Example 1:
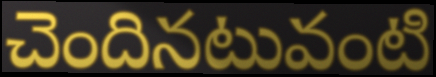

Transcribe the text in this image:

చెందినటువంటి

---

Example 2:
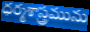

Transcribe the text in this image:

ధర్మశాస్త్రమును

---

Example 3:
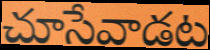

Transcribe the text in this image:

చూసేవాడట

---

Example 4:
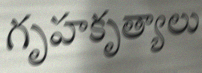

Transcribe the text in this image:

గృహకృత్యాలు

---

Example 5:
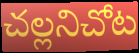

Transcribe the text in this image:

చల్లనిచోట